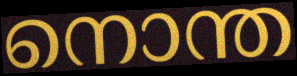
നൊന്ത